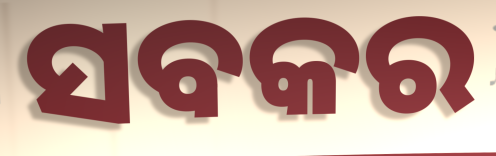
ସବକର